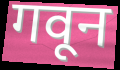
गवून